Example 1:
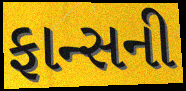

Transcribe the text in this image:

ફાન્સની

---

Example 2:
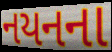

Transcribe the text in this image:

નયનના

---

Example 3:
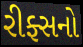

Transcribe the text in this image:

રીફ્સનો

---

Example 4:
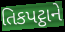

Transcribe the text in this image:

તિકપટ્ઠાને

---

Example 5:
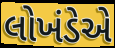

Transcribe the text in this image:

લોખંડેએ